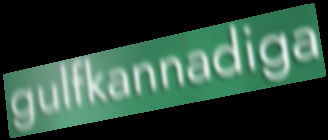
gulfkannadiga